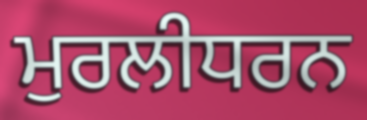
ਮੁਰਲੀਧਰਨ